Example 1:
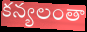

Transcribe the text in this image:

కన్యలంతా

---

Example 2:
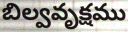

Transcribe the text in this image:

బిల్వవృక్షము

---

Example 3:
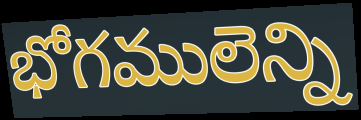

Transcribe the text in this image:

భోగములెన్ని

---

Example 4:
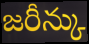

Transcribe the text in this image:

జరీన్కు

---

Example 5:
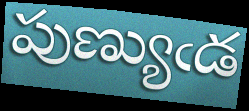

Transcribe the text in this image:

పుణ్యుఁడ